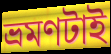
ভ্রমণটাই